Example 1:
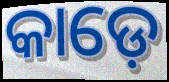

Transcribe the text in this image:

କାଡ଼େ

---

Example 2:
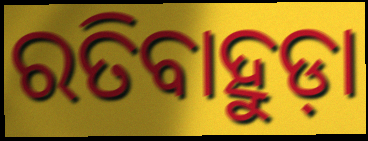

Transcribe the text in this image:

ରତିବାହୁଡ଼ା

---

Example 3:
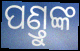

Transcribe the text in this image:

ପଣ୍ତୁଙ୍କ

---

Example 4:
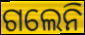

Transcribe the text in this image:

ଗଲେନି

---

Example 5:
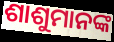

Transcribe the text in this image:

ଶାଶୁମାନଙ୍କ